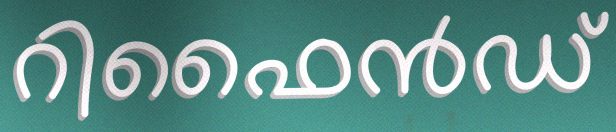
റിഫൈൻഡ്